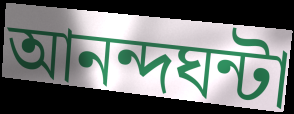
আনন্দঘন্টা